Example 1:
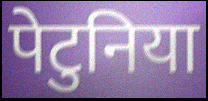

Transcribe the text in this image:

पेटुनिया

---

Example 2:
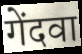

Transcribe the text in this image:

गेंदवा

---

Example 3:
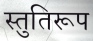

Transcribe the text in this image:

स्तुतिरूप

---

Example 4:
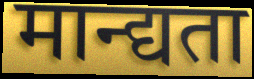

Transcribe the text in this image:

मान्द्यता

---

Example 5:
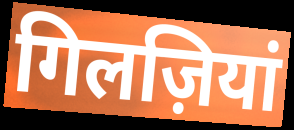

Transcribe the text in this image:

गिलज़ियां